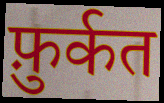
फ़ुर्कत